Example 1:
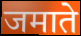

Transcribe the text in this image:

जमाते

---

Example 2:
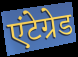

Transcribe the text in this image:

एंटेग्रेड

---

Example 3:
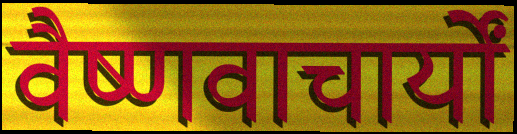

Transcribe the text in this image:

वैष्णवाचार्यों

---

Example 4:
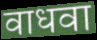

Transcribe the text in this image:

वाधवा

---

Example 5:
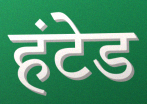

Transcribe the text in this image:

हंटेड